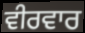
ਵੀਰਵਾਰ